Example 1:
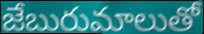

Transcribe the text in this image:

జేబురుమాలుతో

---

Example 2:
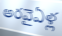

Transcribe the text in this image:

అరవైఏళ్ల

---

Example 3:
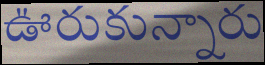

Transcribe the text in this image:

ఊరుకున్నారు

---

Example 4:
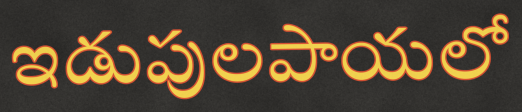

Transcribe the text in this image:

ఇడుపులపాయలో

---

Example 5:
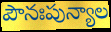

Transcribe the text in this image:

పౌనఃపున్యాల